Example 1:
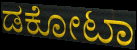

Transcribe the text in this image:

ಡಕೋಟಾ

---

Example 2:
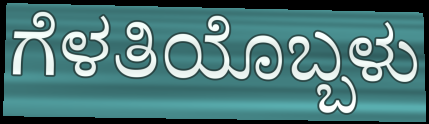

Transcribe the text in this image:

ಗೆಳತಿಯೊಬ್ಬಳು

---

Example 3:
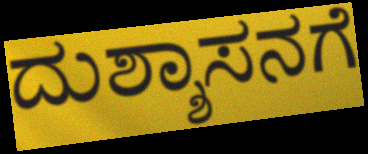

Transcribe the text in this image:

ದುಶ್ಶಾಸನಗೆ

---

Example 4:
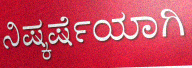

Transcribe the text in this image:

ನಿಷ್ಕರ್ಷೆಯಾಗಿ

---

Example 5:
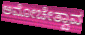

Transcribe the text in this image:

ಅಮೋಚೇತ್ವಾವ